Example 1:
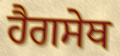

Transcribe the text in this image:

ਹੈਗਸੇਥ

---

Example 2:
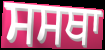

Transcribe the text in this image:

ਸਸਥਾ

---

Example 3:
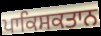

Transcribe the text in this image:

ਪਾਕਿਸਕਤਾਨ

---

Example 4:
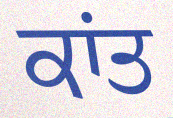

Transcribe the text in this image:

ਕਾਂਤ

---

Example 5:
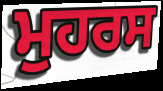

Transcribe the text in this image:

ਮੁਹਰਸ